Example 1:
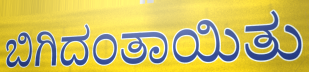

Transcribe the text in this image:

ಬಿಗಿದಂತಾಯಿತು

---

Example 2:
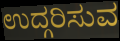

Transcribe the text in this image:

ಉದ್ಗರಿಸುವ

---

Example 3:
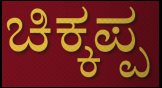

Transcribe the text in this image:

ಚಿಕ್ಕಪ್ಪ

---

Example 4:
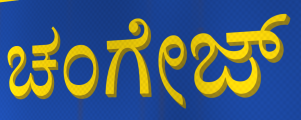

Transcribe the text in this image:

ಚಂಗೇಜ್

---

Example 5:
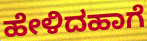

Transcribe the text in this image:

ಹೇಳಿದಹಾಗೆ